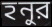
হনুর